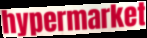
hypermarket